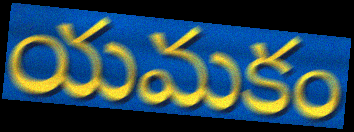
యమకం